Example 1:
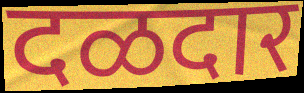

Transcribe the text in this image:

दळदार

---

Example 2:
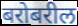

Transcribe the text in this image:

बरोबरील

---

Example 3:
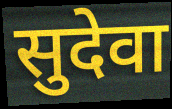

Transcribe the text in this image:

सुदेवा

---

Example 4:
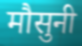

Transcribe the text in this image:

मौसुनी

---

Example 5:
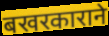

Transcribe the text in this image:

बखरकाराने